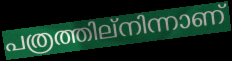
പത്രത്തില്നിന്നാണ്